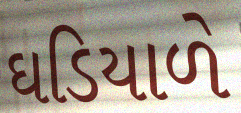
ઘડિયાળે